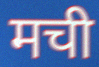
मची